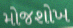
મોજશોખ